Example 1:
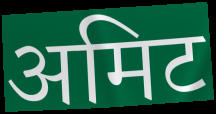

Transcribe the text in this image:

अमिट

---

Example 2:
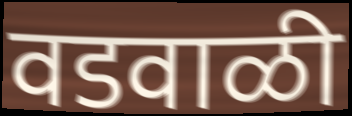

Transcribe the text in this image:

वडवाळी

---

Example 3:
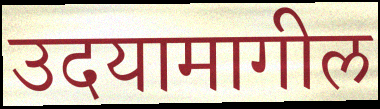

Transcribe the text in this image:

उदयामागील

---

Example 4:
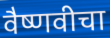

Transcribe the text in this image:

वैष्णवीचा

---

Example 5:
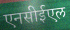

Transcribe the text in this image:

एनसीईएल